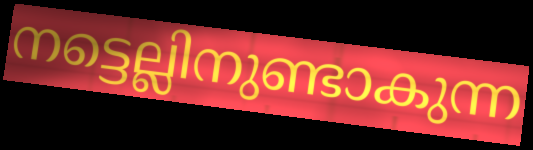
നട്ടെല്ലിനുണ്ടാകുന്ന